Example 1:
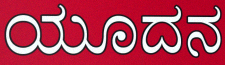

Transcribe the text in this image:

ಯೂದನ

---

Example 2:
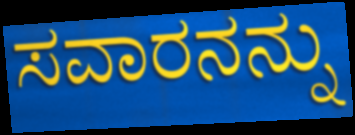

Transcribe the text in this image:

ಸವಾರನನ್ನು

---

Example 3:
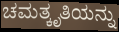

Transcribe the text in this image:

ಚಮತ್ಕೃತಿಯನ್ನು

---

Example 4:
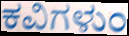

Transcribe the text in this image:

ಕವಿಗಳುಂ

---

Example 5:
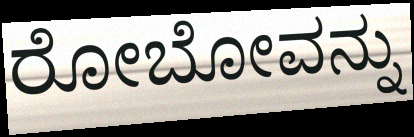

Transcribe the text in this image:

ರೋಬೋವನ್ನು